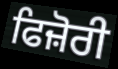
ਫਿਜ਼ੋਰੀ